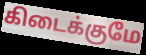
கிடைக்குமே